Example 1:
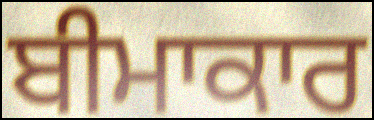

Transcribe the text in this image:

ਬੀਮਾਕਾਰ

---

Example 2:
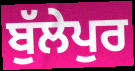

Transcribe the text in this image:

ਬੁੱਲੇਪੁਰ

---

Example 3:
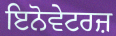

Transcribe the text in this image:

ਇਨੋਵੇਟਰਜ਼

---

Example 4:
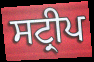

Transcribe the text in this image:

ਸਟ੍ਰੀਪ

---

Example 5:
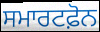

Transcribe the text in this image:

ਸਮਾਰਟਫ਼ੋਨ